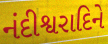
નંદીશ્વરાદિને